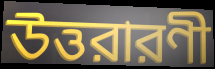
উত্তরারণী